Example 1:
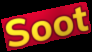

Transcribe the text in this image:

Soot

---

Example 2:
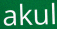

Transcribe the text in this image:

akul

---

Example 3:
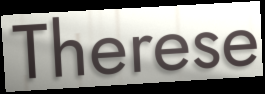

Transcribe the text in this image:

Therese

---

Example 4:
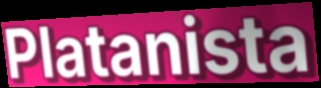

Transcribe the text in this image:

Platanista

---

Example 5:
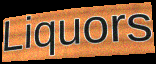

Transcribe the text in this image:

Liquors